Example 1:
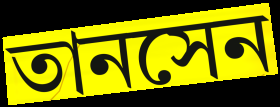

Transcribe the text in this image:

তানসেন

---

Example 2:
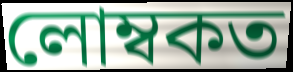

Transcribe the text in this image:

লোম্বকত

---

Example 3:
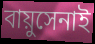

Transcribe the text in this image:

বায়ুসেনাই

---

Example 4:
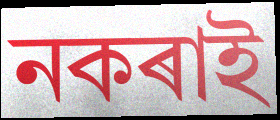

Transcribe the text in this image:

নকৰাই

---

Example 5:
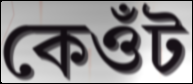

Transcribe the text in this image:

কেওঁট